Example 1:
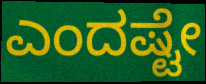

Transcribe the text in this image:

ಎಂದಷ್ಟೇ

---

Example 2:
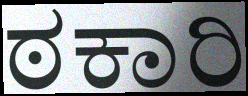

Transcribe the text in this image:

ಠಕಾರಿ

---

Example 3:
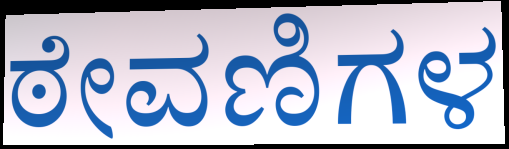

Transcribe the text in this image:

ಠೇವಣಿಗಳ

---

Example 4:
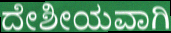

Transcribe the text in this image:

ದೇಶೀಯವಾಗಿ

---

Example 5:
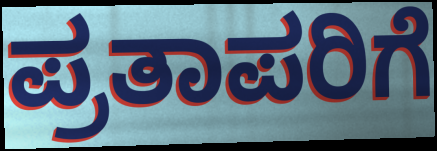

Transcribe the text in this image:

ಪ್ರತಾಪರಿಗೆ